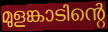
മുളങ്കാടിന്റെ